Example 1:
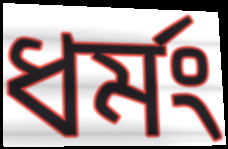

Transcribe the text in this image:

ধর্মং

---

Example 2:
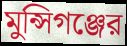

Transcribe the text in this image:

মুন্সিগঞ্জের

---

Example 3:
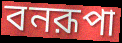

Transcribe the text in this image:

বনরূপা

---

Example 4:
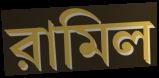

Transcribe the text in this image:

রামিল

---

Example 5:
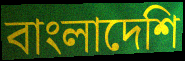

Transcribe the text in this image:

বাংলাদেশি